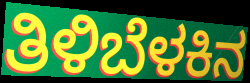
ತಿಳಿಬೆಳಕಿನ